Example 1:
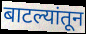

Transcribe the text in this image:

बाटल्यांतून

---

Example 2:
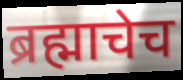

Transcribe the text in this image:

ब्रह्माचेच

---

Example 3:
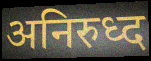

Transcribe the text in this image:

अनिरुध्द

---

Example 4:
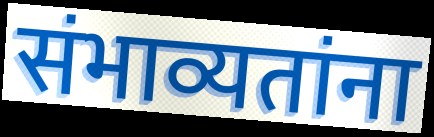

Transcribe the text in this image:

संभाव्यतांना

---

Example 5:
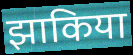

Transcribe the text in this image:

झाकिया